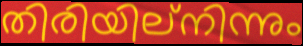
തിരിയില്നിന്നും